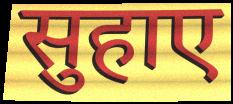
सुहाए